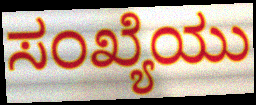
ಸಂಖ್ಯೆಯು